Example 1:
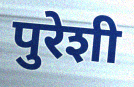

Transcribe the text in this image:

पुरेशी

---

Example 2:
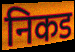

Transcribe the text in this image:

निकड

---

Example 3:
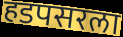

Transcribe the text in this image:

हडपसरला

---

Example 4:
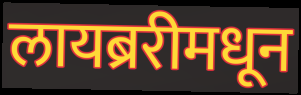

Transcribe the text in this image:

लायब्ररीमधून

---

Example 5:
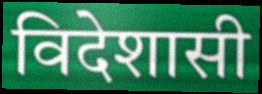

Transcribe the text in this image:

विदेशासी